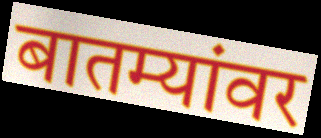
बातम्यांवर